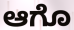
ಆಗೊ